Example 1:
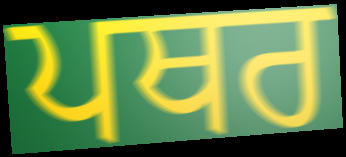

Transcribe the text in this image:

ਪਥਰ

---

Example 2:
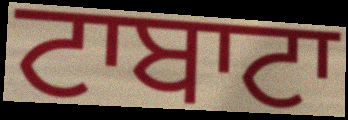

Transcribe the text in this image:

ਟਾਬਾਟਾ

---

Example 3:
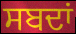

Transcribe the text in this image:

ਸਬਦਾਂ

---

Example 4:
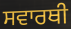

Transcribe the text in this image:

ਸਵਾਰਥੀ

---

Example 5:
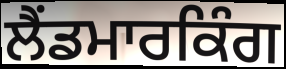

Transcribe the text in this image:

ਲੈਂਡਮਾਰਕਿੰਗ